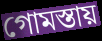
গোমস্তায়